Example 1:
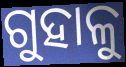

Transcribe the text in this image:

ଗୁହାଳୁ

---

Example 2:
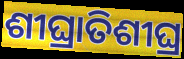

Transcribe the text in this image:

ଶୀଘ୍ରାତିଶୀଘ୍ର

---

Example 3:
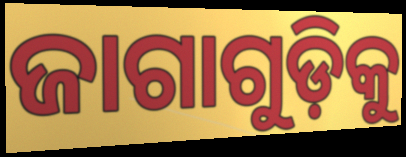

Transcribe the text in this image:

ଜାଗାଗୁଡ଼ିକୁ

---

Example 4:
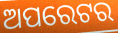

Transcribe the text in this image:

ଅପରେଟର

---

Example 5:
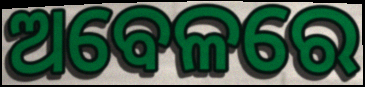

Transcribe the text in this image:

ଅବେଳରେ